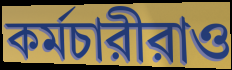
কর্মচারীরাও